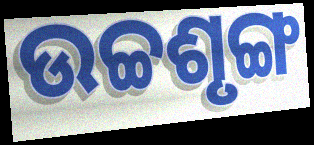
ଉଚ୍ଚଶୃଙ୍ଗ